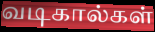
வடிகால்கள்